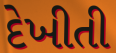
દેખીતી